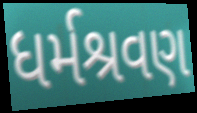
ધર્મશ્રવણ